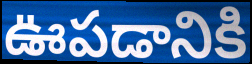
ఊపడానికి